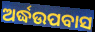
ଅର୍ଦ୍ଧଉପବାସ